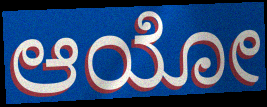
ಆಯೋ